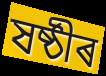
ষষ্ঠীৰ